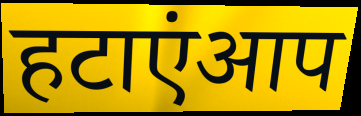
हटाएंआप